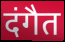
दंगैत